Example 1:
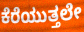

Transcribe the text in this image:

ಕೆರೆಯುತ್ತಲೇ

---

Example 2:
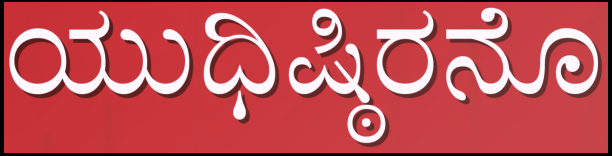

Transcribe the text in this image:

ಯುಧಿಷ್ಠಿರನೊ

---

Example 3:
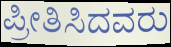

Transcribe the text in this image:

ಪ್ರೀತಿಸಿದವರು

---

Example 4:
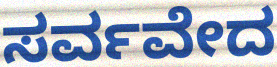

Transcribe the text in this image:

ಸರ್ವವೇದ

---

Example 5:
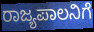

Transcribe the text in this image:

ರಾಜ್ಯಪಾಲನಿಗೆ